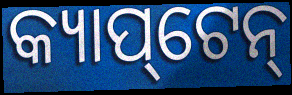
କ୍ୟାପ୍‌ଟେନ୍